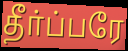
தீர்ப்பரே